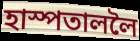
হাস্পতাললৈ